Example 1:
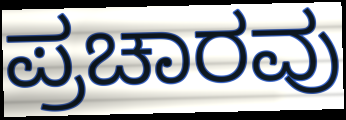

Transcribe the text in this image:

ಪ್ರಚಾರವು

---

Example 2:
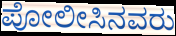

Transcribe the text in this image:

ಪೋಲೀಸಿನವರು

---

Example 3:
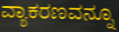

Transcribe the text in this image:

ವ್ಯಾಕರಣವನ್ನೂ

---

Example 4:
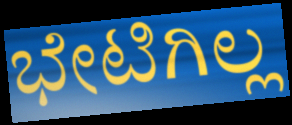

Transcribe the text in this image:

ಭೇಟಿಗಿಲ್ಲ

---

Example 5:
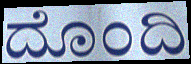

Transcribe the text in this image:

ದೊಂದಿ